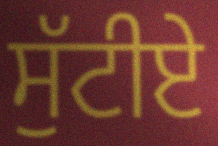
ਸੁੱਟੀਏ